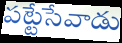
పట్టేసేవాడు